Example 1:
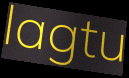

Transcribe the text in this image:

lagtu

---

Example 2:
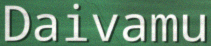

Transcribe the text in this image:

Daivamu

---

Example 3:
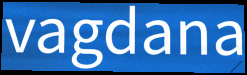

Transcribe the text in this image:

vagdana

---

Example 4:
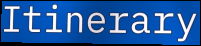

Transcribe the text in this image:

Itinerary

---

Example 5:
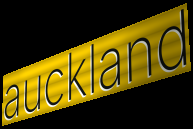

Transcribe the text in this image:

auckland